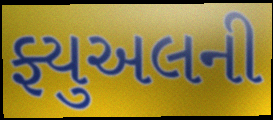
ફ્યુઅલની